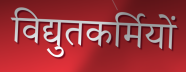
विद्युतकर्मियों